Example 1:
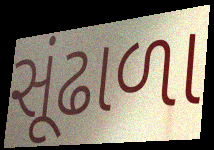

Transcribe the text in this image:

સૂંઢાળા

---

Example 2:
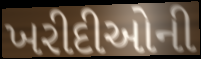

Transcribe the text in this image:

ખરીદીઓની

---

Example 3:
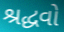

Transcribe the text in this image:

શ્રદ્ધવો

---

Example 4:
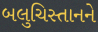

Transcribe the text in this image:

બલુચિસ્તાનને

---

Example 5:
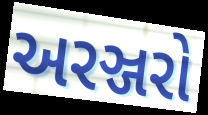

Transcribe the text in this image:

અરઞ્જરો